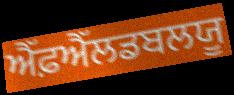
ਐੱਫ਼ਐੱਲਡਬਲਯੂ